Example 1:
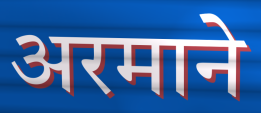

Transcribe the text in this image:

अरमाने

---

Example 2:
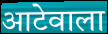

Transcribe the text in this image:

आटेवाला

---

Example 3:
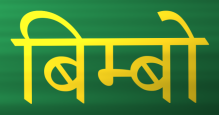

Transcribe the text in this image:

बिम्बो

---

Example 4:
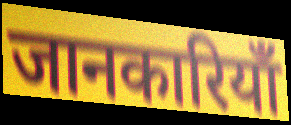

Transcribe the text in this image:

जानकारियाँ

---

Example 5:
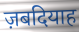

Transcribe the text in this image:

ज़बदियाह